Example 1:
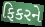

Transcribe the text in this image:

ફિકરને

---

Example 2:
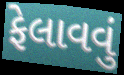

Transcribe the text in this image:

ફેલાવવું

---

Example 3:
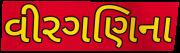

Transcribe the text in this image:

વીરગણિના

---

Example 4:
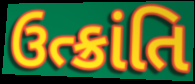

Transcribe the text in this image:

ઉત્ક્રાંતિ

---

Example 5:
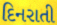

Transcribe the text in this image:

દિનરાતી